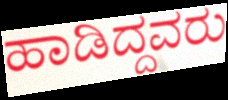
ಹಾಡಿದ್ದವರು